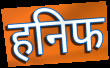
हनिफ